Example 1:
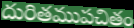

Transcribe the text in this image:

దురితముపచితం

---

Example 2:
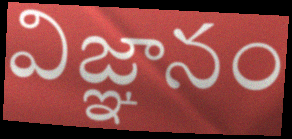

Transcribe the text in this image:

విజ్ఞానం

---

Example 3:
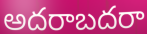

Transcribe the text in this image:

అదరాబదరా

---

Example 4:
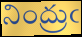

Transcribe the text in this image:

నింద్రుఁ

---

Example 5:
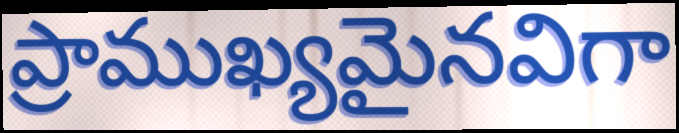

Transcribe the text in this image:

ప్రాముఖ్యమైనవిగా